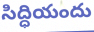
సిద్ధియందు